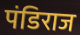
पंडिराज